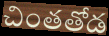
చింతతోడ